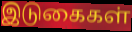
இடுகைகள்